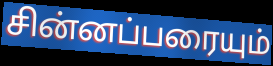
சின்னப்பரையும்